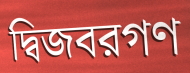
দ্বিজবরগণ